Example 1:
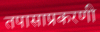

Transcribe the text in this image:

तपासाप्रकरणी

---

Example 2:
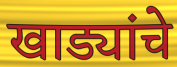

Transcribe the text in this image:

खाड्यांचे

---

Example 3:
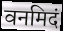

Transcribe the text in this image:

वनमिदं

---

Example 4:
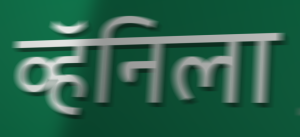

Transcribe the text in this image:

व्हॅनिला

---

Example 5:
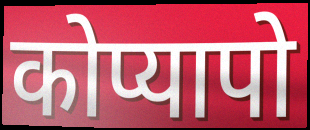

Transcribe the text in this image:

कोप्यापो